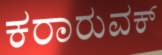
ಕರಾರುವಕ್